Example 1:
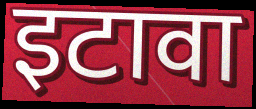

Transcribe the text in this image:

इटावा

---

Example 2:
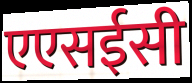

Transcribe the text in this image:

एएसईसी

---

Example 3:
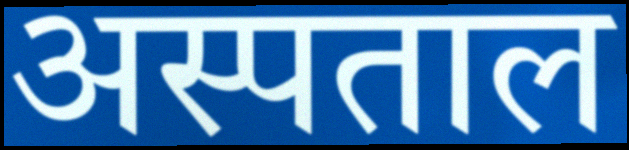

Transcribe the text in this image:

अस्पताल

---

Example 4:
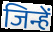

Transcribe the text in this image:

जिन्हें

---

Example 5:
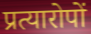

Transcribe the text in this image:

प्रत्यारोपों